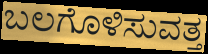
ಬಲಗೊಳಿಸುವತ್ತ